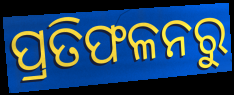
ପ୍ରତିଫଳନରୁ